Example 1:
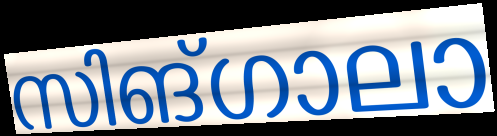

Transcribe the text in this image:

സിങ്ഗാലാ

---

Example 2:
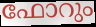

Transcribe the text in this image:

ഫോറും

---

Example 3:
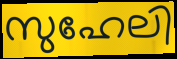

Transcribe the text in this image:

സുഹേലി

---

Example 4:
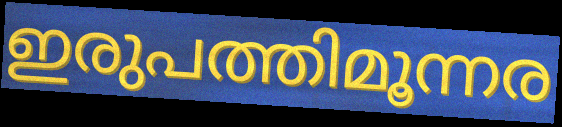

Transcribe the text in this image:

ഇരുപത്തിമൂന്നര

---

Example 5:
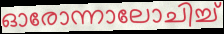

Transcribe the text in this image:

ഓരോന്നാലോചിച്ച്